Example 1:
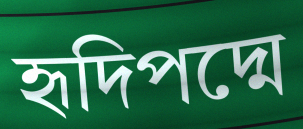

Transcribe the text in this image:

হৃদিপদ্মে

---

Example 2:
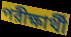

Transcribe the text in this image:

পরীক্ষার্থী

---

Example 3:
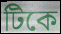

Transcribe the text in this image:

টিকে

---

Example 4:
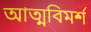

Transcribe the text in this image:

আত্মবিমর্শ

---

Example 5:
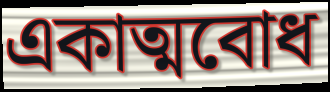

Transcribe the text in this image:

একাত্মবোধ